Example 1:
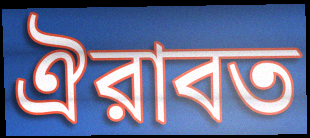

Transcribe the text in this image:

ঐরাবত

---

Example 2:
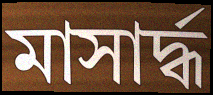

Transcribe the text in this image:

মাসার্দ্ধ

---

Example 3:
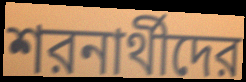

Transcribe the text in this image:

শরনার্থীদের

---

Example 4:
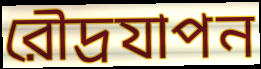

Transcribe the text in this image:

রৌদ্রযাপন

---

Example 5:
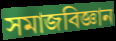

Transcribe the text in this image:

সমাজবিজ্ঞান